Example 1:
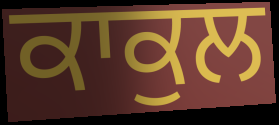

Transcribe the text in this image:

ਕਾਕੁਲ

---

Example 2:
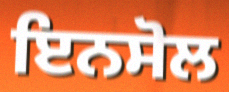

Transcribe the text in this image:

ਇਨਸੋਲ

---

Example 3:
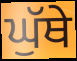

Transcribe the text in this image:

ਘੁੱਥੇ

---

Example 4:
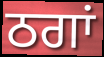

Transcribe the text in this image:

ਠਗਾਂ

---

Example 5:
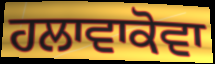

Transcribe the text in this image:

ਹਲਾਵਾਕੋਵਾ